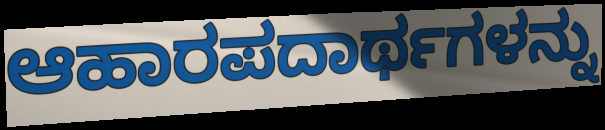
ಆಹಾರಪದಾರ್ಥಗಳನ್ನು